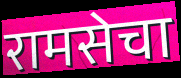
रामसेचा